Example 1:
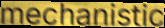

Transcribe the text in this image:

mechanistic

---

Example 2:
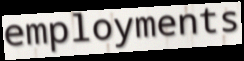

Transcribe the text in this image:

employments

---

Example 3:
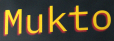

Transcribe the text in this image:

Mukto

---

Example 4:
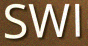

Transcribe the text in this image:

SWI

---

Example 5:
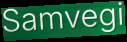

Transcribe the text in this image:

Samvegi